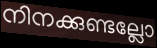
നിനക്കുണ്ടല്ലോ